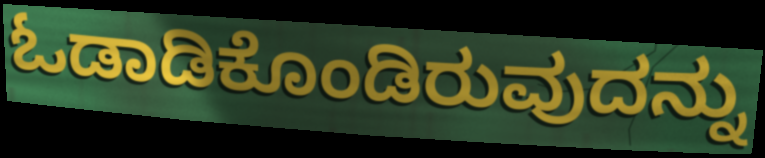
ಓಡಾಡಿಕೊಂಡಿರುವುದನ್ನು